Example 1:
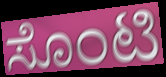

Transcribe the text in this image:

ಸೊಂಟಿ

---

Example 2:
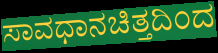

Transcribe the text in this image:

ಸಾವಧಾನಚಿತ್ತದಿಂದ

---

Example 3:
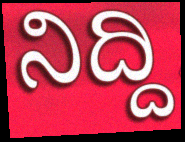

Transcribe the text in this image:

ನಿದ್ದಿ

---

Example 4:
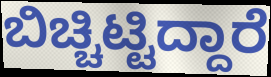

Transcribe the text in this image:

ಬಿಚ್ಚಿಟ್ಟಿದ್ದಾರೆ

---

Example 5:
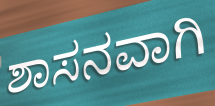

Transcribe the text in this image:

ಶಾಸನವಾಗಿ